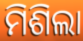
ମିଶିଲା